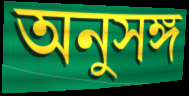
অনুসঙ্গ